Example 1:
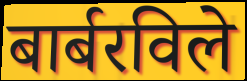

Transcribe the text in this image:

बार्बरविले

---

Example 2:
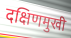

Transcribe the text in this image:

दक्षिणमुखी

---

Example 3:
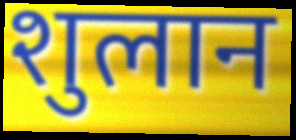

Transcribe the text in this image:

शुलान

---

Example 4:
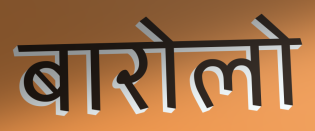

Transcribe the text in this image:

बारोलो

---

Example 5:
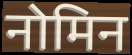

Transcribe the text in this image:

नोमिन